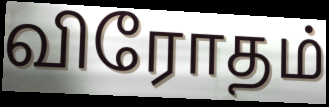
விரோதம்